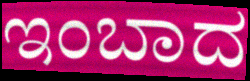
ಇಂಬಾದ